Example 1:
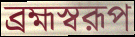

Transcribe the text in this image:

ব্রহ্মস্বরূপ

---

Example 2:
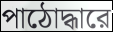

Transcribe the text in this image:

পাঠোদ্ধারে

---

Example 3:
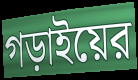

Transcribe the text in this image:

গড়াইয়ের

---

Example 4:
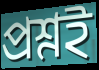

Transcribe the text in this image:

প্রশ্নই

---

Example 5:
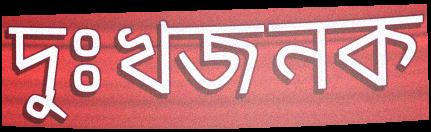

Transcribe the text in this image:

দুঃখজনক